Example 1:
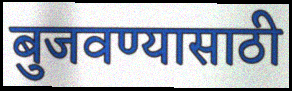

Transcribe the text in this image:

बुजवण्यासाठी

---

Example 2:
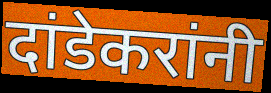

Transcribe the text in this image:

दांडेकरांनी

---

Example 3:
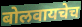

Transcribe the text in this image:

बोलवायचेच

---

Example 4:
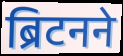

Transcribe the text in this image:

ब्रिटनने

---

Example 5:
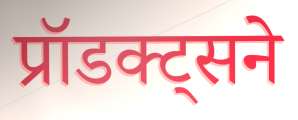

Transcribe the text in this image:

प्रॉडक्ट्सने